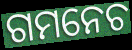
ଗମନେଚ